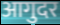
आगुदर